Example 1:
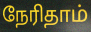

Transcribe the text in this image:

நேரிதாம்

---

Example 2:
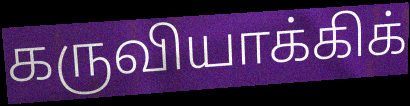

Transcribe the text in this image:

கருவியாக்கிக்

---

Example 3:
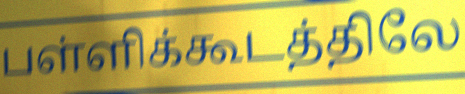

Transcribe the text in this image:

பள்ளிக்கூடத்திலே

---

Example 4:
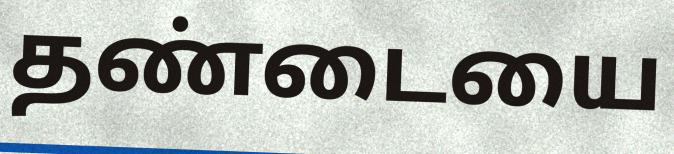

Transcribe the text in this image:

தண்டையை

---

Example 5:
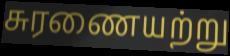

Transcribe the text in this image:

சுரணையற்று